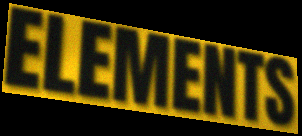
ELEMENTS